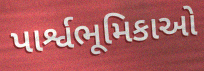
પાર્શ્વભૂમિકાઓ